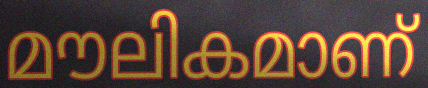
മൗലികമാണ്